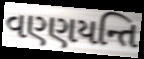
વણ્ણયન્તિ